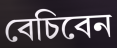
বেচিবেন